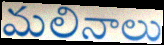
మలినాలు